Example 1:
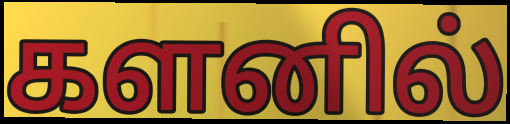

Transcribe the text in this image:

களனில்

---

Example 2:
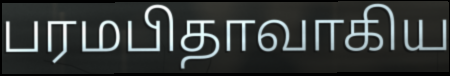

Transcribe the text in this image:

பரமபிதாவாகிய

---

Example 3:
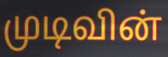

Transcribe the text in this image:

முடிவின்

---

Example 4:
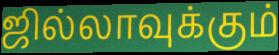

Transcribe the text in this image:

ஜில்லாவுக்கும்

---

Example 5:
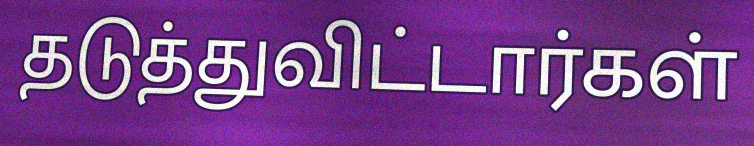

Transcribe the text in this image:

தடுத்துவிட்டார்கள்